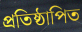
প্ৰতিষ্ঠাপিত